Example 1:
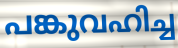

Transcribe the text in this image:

പങ്കുവഹിച്ച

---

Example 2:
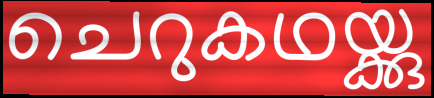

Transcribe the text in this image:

ചെറുകഥയ്ക്കു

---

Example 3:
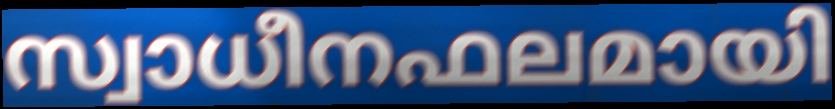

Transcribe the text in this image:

സ്വാധീനഫലമായി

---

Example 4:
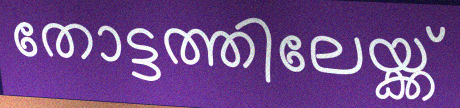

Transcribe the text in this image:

തോട്ടത്തിലേയ്ക്ക്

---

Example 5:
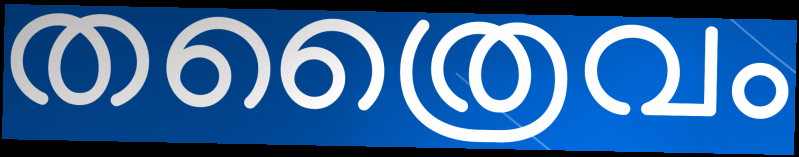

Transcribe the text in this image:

തത്രൈവം